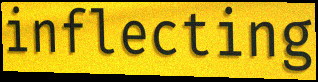
inflecting